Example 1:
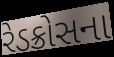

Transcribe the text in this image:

રેડક્રોસના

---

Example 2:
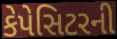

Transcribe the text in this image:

કેપેસિટરની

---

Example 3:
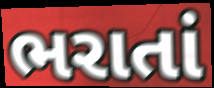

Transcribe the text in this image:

ભરાતાં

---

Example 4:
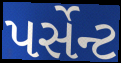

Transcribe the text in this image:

પર્સેન્ટ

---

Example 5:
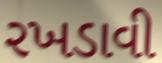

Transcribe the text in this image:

રખડાવી